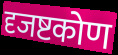
दृजष्टकोण